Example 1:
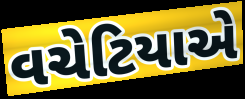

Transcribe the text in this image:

વચેટિયાએ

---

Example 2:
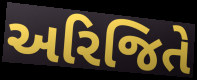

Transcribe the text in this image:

અરિજિતે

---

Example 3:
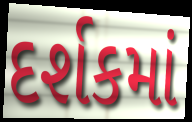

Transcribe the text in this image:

દર્શકમાં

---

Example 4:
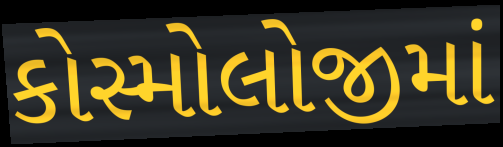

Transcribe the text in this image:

કોસ્મોલોજીમાં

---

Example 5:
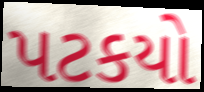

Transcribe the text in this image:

પટકયો